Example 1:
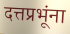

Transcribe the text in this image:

दत्तप्रभूंना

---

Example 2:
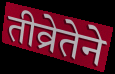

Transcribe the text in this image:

तीव्रेतेने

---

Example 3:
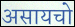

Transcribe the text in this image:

असायचो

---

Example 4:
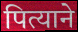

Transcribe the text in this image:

पित्याने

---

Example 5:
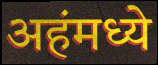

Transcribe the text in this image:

अहंमध्ये